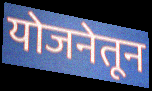
योजनेतून